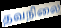
தவநிலை